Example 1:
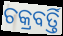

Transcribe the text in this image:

ଚକ୍ରବର୍ତ୍ତି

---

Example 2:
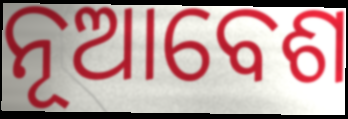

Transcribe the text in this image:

ନୂଆବେଶ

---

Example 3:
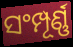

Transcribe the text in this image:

ସଂମ୍ପୂର୍ଣ୍ଣ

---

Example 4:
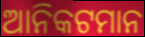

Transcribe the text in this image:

ଆନିକଟମାନ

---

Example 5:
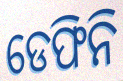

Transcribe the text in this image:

ଡେଫିନି